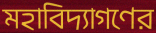
মহাবিদ্যাগণের